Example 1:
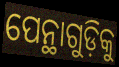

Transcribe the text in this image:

ପେନ୍ଥାଗୁଡ଼ିକୁ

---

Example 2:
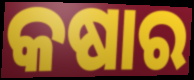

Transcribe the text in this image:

କଷାର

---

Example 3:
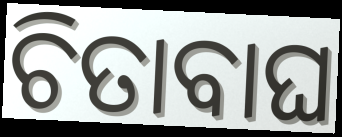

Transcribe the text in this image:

ଚିତାବାଘ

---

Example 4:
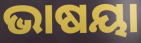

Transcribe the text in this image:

ଭାଷୟା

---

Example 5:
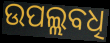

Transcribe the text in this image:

ଉପଲ୍ଲବଧି